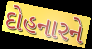
દોહનારને